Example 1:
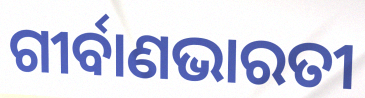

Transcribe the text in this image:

ଗୀର୍ବାଣଭାରତୀ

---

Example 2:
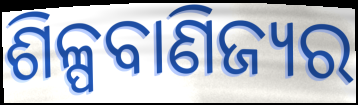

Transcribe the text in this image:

ଶିଳ୍ପବାଣିଜ୍ୟର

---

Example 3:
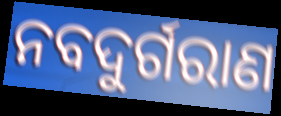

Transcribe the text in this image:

ନବଦୁର୍ଗରାଣ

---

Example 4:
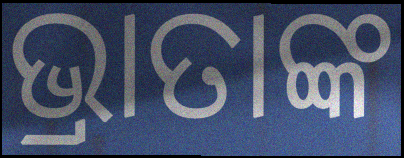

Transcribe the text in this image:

ଭ୍ରାତାଙ୍କ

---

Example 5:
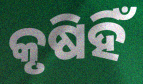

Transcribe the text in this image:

କୃଷିହିଁ